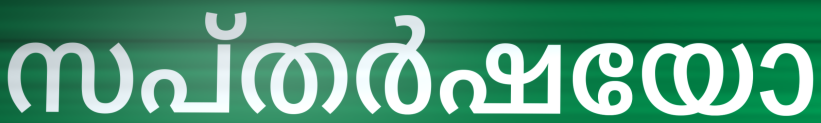
സപ്തർഷയോ